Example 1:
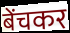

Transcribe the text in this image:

बेंचकर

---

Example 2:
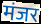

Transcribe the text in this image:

मंजर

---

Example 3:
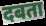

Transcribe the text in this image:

दबता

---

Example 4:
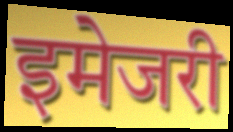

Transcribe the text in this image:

इमेजरी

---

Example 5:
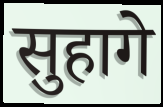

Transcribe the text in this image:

सुहागे